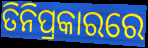
ତିନିପ୍ରକାରରେ